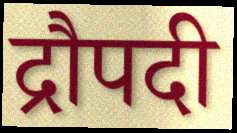
द्रौपदी